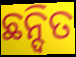
ଛନ୍ଦିତ